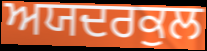
ਅਯਦਰਕੁਲ